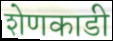
शेणकाडी